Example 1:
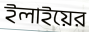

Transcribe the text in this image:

ইলাইয়ের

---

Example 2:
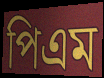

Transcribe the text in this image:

পিএম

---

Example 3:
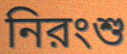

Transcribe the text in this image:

নিরংশু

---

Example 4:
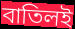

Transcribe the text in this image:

বাতিলই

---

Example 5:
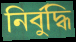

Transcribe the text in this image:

নির্বুদ্ধি